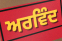
ਅਰਵਿੰਦ